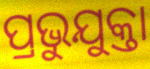
ପ୍ରଭୁଯୁକ୍ତା